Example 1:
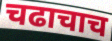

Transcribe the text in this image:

चढाचाच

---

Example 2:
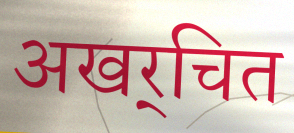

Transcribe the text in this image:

अखर्चित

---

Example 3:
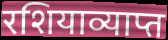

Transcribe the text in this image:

रशियाव्याप्त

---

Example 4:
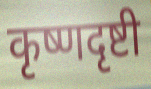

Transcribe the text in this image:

कृष्णदृष्टी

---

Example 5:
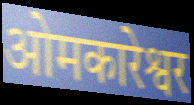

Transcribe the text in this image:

ओमकारेश्वर